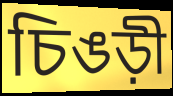
চিঙড়ী